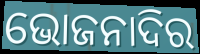
ଭୋଜନାଦିର